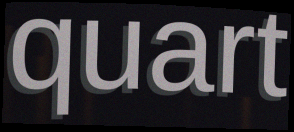
quart